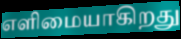
எளிமையாகிறது